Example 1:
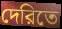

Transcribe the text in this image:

দেরিতে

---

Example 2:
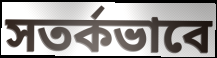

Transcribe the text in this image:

সতর্কভাবে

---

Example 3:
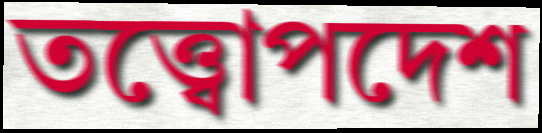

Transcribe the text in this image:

তত্ত্বোপদেশ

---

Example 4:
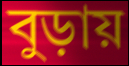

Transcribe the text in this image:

বুড়ায়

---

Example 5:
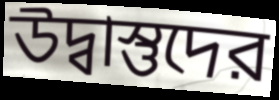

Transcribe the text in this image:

উদ্বাস্তুদের